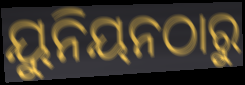
ୟୁନିୟନଠାରୁ